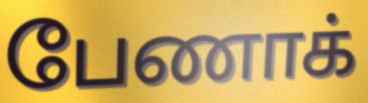
பேணாக்